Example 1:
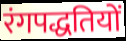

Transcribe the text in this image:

रंगपद्धतियों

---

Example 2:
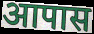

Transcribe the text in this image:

आपास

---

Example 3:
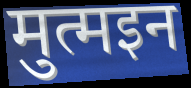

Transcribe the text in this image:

मुत्मइन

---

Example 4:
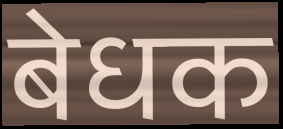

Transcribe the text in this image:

बेधक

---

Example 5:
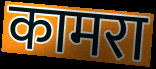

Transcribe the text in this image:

कामरा